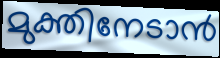
മുക്തിനേടാൻ